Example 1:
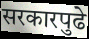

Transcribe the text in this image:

सरकारपुढे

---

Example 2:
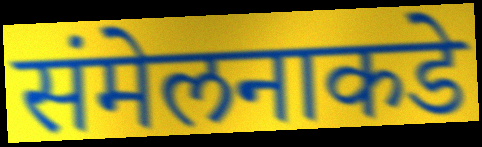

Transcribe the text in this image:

संमेलनाकडे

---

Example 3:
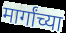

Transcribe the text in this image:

मार्गांच्या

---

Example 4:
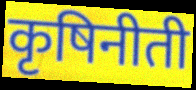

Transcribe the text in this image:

कृषिनीती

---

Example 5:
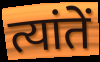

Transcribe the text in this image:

त्यांतें